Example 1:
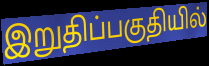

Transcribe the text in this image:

இறுதிப்பகுதியில்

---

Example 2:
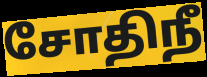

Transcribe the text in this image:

சோதிநீ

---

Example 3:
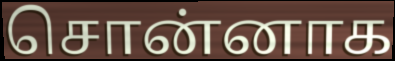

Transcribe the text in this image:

சொன்னாக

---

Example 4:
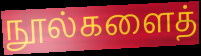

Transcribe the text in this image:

நூல்களைத்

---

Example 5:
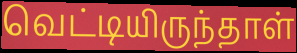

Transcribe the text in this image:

வெட்டியிருந்தாள்